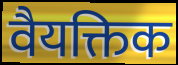
वैयक्तिक